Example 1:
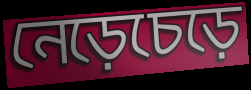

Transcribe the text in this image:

নেড়েচেড়ে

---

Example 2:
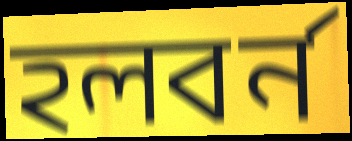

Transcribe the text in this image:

হলবর্ন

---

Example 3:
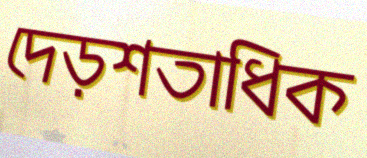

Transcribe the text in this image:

দেড়শতাধিক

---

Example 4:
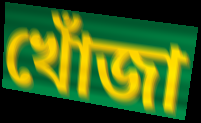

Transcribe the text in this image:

খোঁজা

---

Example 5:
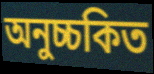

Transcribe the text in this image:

অনুচ্চকিত